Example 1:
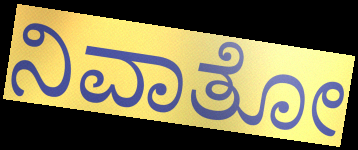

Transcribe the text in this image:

ನಿವಾತೋ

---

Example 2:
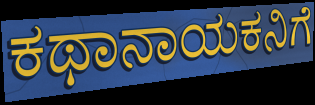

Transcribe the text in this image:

ಕಥಾನಾಯಕನಿಗೆ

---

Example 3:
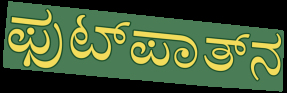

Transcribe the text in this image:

ಫುಟ್‌ಪಾತ್‌ನ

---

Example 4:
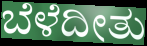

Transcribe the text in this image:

ಬೆಳೆದೀತು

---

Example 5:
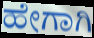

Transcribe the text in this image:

ಹೇಗಾಗಿ